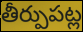
తీర్పుపట్ల